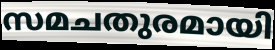
സമചതുരമായി